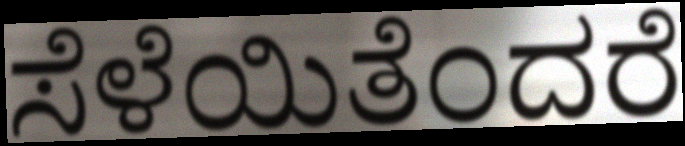
ಸೆಳೆಯಿತೆಂದರೆ